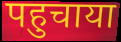
पहुचाया